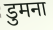
डुमना